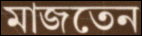
মাজতেন